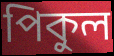
পিকুল